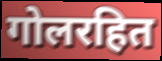
गोलरहित